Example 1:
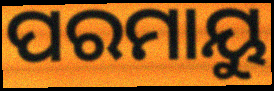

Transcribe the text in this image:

ପରମାୟୁ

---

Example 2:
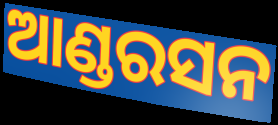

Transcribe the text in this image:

ଆଣ୍ଡରସନ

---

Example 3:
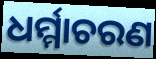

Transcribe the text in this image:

ଧର୍ମ୍ମାଚରଣ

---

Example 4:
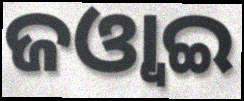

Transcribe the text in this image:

ଜଓ୍ବାଇ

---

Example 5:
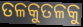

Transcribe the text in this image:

ତଳକୁତଳକୁ